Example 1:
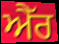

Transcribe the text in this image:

ਐੱਰ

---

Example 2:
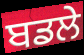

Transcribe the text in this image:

ਬਡਲੇ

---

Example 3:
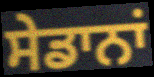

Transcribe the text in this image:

ਸੇਡਾਨਾਂ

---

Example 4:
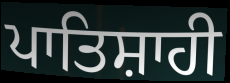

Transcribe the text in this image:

ਪਾਤਿਸ਼ਾਹੀ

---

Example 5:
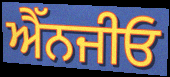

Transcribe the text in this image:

ਐੱਨਜੀਓ